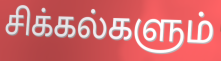
சிக்கல்களும்